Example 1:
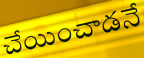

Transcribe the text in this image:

చేయించాడనే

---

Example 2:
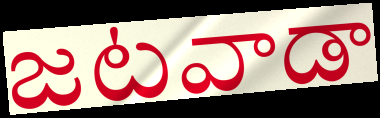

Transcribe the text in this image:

జటవాడా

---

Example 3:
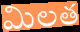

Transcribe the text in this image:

మిలత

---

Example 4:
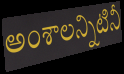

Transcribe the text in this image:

అంశాలన్నిటినీ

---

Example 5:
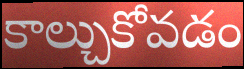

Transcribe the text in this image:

కాల్చుకోవడం